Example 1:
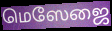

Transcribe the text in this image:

மெஸேஜை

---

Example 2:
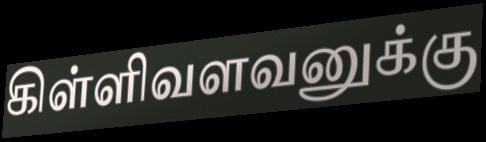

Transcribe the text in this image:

கிள்ளிவளவனுக்கு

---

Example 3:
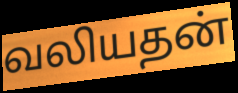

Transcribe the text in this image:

வலியதன்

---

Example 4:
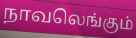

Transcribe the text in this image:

நாவலெங்கும்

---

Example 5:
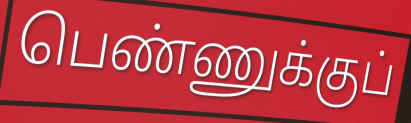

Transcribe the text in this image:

பெண்ணுக்குப்